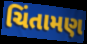
ચિંતામણ